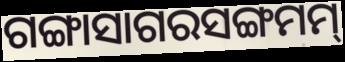
ଗଙ୍ଗାସାଗରସଙ୍ଗମମ୍